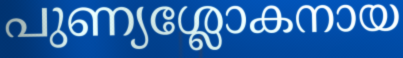
പുണ്യശ്ലോകനായ